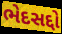
ભેદસદ્દો